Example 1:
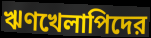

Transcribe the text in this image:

ঋণখেলাপিদের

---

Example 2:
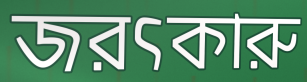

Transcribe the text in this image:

জরৎকারু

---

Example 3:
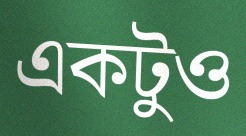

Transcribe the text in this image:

একটুও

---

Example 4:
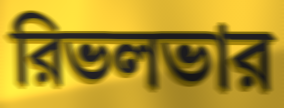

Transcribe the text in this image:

রিভলভার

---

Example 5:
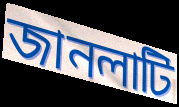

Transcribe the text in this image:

জানলাটি